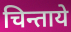
चिन्ताये